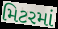
મિટરમાં